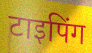
टाइपिंग